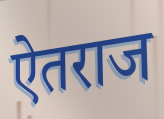
ऐतराज